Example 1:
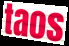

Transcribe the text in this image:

taos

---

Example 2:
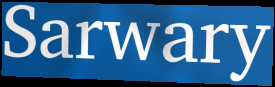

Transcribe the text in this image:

Sarwary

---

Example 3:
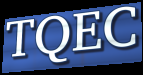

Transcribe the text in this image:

TQEC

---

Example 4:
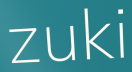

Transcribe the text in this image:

zuki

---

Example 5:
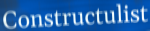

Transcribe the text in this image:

Constructulist